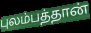
புலம்பத்தான்